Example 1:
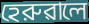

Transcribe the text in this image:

হেৰুৱালে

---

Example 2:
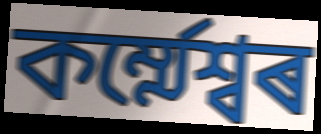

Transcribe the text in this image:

কৰ্ম্মেশ্বৰ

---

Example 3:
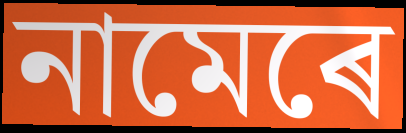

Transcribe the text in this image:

নামেৰে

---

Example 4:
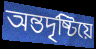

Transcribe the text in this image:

অন্তৰ্দৃষ্টিয়ে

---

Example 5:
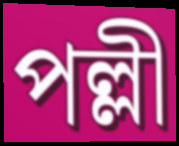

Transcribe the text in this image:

পল্লী